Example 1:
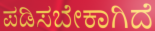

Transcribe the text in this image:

ಪಡಿಸಬೇಕಾಗಿದೆ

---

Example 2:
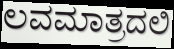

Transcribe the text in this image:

ಲವಮಾತ್ರದಲಿ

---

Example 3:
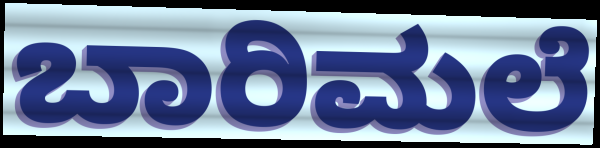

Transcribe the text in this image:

ಬಾರಿಮಲೆ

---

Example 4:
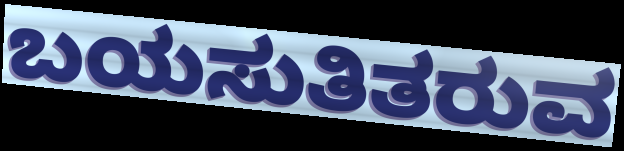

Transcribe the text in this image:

ಬಯಸುತಿತರುವ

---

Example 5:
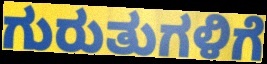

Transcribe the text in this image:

ಗುರುತುಗಳಿಗೆ